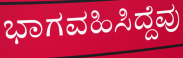
ಭಾಗವಹಿಸಿದ್ದೆವು